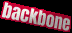
backbone